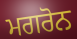
ਮਗਰੋਨ